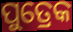
ପୁତ୍ରେକ